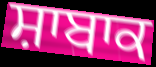
ਸ਼ਾਬਾਕ